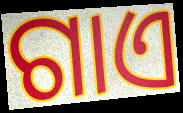
ଗାଏ